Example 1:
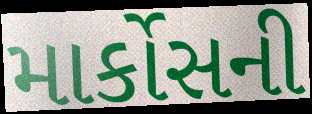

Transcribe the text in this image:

માર્કોસની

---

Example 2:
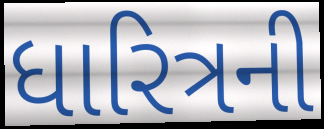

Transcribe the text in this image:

ધારિત્રની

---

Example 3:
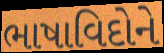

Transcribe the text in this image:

ભાષાવિદોને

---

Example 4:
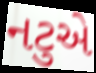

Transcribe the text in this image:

નટુએ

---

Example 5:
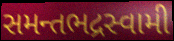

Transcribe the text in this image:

સમન્તભદ્રસ્વામી